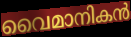
വൈമാനികൻ